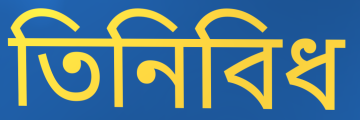
তিনিবিধ